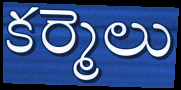
కర్మెలు